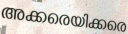
അക്കരെയിക്കരെ